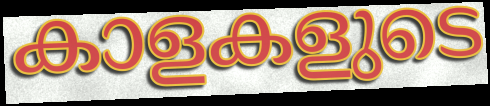
കാളകളുടെ